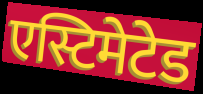
एस्टिमेटेड